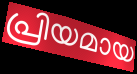
പ്രിയമായ